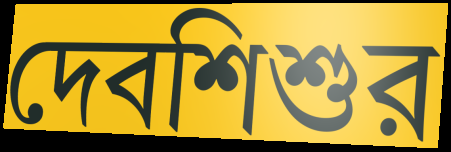
দেবশিশুর